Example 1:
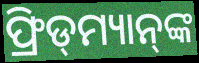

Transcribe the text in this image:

ଫ୍ରିଡ୍‌ମ୍ୟାନ୍‌ଙ୍କ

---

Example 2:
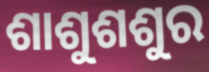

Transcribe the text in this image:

ଶାଶୁଶଶୁର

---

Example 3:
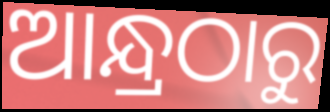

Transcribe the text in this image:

ଆନ୍ଧ୍ରଠାରୁ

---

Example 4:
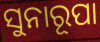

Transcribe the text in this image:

ସୁନାରୂପା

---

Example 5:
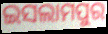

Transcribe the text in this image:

ଇସଲାମପୁର